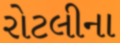
રોટલીના